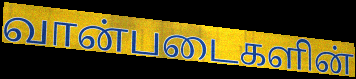
வான்படைகளின்